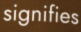
signifies